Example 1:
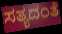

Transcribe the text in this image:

ಸತ್ಯದಂತೆ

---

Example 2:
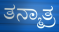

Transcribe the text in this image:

ತನ್ಮಾತ್ರ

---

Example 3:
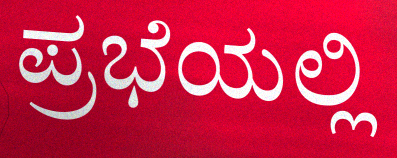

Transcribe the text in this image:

ಪ್ರಭೆಯಲ್ಲಿ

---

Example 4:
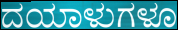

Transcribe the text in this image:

ದಯಾಳುಗಳೂ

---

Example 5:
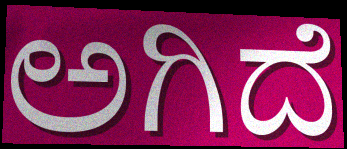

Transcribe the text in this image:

ಅಗಿದೆ